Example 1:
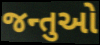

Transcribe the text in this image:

જન્તુઓ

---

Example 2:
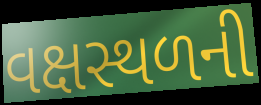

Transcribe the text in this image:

વક્ષસ્થળની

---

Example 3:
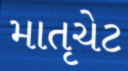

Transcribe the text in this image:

માતૃચેટ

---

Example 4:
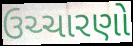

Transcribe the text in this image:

ઉચ્ચારણો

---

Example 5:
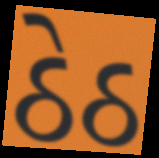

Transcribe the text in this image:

ઠેઠ